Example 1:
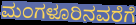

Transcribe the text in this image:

ಮಂಗಳೂರಿನವರೆಗೆ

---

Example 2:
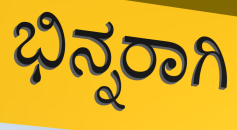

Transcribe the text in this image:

ಭಿನ್ನರಾಗಿ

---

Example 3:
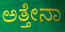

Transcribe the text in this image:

ಅತ್ತೇನಾ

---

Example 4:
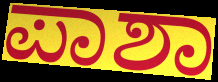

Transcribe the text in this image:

ಪಾಶಾ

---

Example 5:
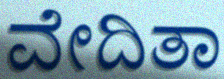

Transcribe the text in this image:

ವೇದಿತಾ